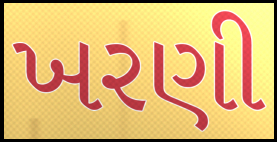
ખરણી